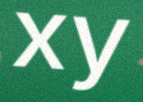
xy